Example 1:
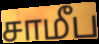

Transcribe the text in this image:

சாமீப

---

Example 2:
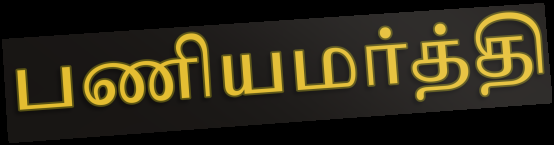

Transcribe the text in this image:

பணியமர்த்தி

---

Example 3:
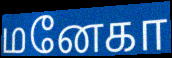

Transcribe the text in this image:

மனேகா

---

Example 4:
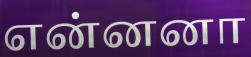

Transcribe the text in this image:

என்னனா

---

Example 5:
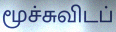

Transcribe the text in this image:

மூச்சுவிடப்